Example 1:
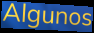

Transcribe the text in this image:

Algunos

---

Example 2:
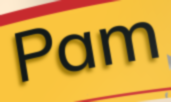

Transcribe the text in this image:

Pam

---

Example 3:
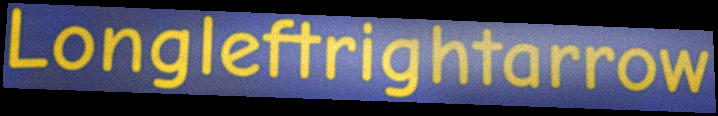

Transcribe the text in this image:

Longleftrightarrow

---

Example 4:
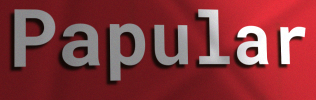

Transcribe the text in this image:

Papular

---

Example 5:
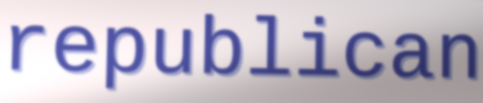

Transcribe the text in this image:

republican